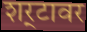
शर्टावर